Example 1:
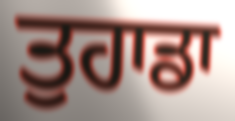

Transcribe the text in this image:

ਤੁਹਾਡਾ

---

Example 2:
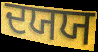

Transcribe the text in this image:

ਦਯਯ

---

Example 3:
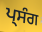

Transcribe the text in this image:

ਪ੍ਸੰਗ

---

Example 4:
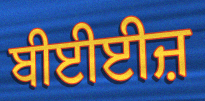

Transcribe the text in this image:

ਬੀਈਈਜ਼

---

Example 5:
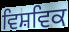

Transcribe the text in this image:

ਵਿਸ਼ਵਿਕ